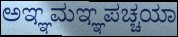
ಅಞ್ಞಮಞ್ಞಪಚ್ಚಯಾ